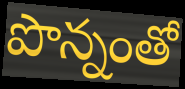
పొన్నంతో